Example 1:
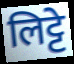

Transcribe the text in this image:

लिट्टे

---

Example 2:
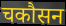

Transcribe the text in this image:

चकौसन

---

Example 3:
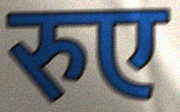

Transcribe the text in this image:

रुए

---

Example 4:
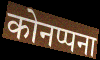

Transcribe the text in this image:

कोनप्पना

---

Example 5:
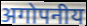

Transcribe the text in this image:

अगोपनीय